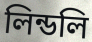
লিন্ডলি